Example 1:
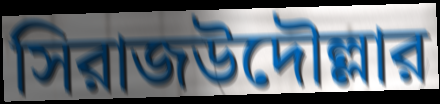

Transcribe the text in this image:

সিরাজউদৌল্লার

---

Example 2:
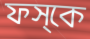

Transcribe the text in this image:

ফস্‌কে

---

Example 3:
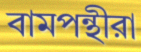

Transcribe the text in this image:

বামপন্থীরা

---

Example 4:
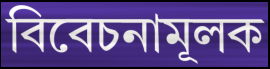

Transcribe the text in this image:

বিবেচনামূলক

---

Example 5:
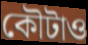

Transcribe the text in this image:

কৌটাও